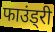
फाउंड्री